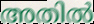
അതിൽ